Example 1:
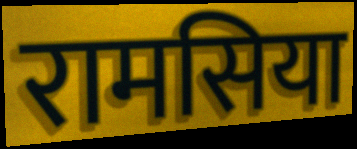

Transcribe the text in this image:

रामसिया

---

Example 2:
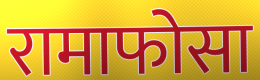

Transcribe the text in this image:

रामाफोसा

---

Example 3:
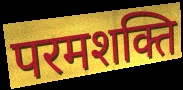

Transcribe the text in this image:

परमशक्ति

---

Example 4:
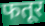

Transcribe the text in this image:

फतूर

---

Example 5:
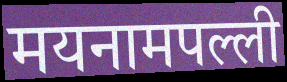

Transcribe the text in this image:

मयनामपल्ली